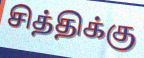
சித்திக்கு